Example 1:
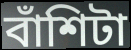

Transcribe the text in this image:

বাঁশিটা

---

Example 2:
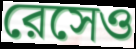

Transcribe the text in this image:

রেসেও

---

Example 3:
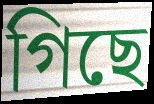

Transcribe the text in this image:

গিছে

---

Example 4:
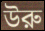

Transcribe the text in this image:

উরু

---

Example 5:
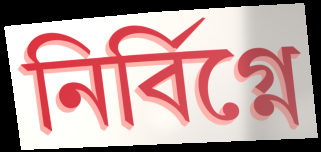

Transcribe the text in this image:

নির্বিগ্নে